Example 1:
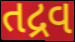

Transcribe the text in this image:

તદ્રવ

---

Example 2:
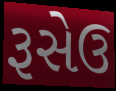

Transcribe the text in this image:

રૂસેઉ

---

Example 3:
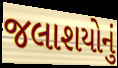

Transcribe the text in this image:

જલાશયોનું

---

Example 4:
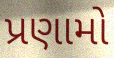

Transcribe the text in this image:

પ્રણામો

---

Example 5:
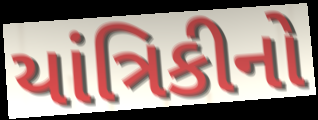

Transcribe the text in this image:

યાંત્રિકીનો